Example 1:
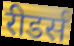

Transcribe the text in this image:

रीडर्स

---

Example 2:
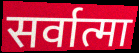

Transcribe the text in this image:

सर्वात्मा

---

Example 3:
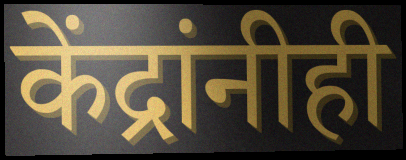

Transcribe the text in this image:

केंद्रांनीही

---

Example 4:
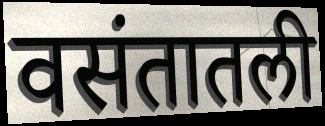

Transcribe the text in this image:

वसंतातली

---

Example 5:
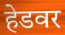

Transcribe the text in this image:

हेडवर